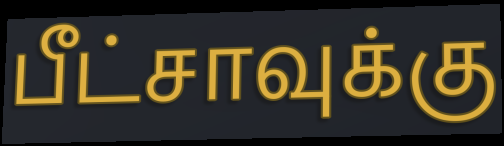
பீட்சாவுக்கு